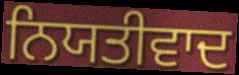
ਨਿਯਤੀਵਾਦ